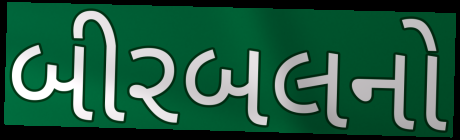
બીરબલનો